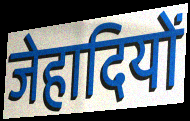
जेहादियों